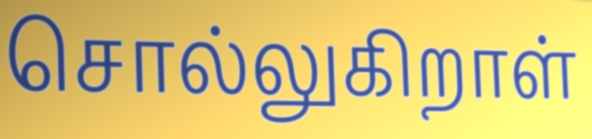
சொல்லுகிறாள்